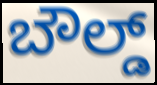
ಬೌಲ್ಡ್